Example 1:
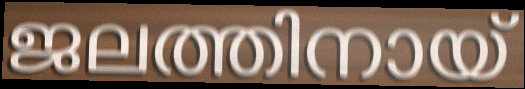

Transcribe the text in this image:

ജലത്തിനായ്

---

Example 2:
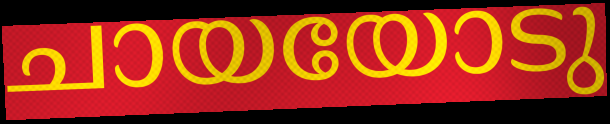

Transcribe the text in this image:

ചായയോടു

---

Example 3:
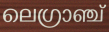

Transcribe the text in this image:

ലെഗ്രാഞ്ച്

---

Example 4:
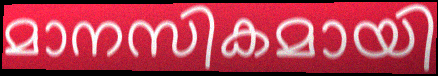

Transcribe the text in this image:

മാനസികമായി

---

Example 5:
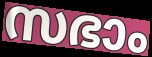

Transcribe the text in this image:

സഭാം